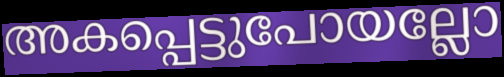
അകപ്പെട്ടുപോയല്ലോ